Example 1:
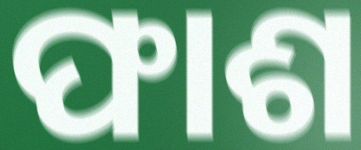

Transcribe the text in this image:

ଫାଶ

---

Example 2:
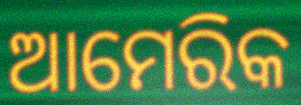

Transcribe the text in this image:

ଆମେରିକ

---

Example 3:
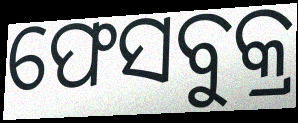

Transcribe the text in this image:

ଫେସବୁକ୍ର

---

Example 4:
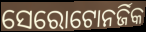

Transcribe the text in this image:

ସେରୋଟୋନର୍ଜିକ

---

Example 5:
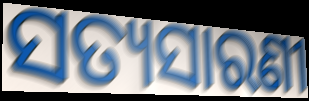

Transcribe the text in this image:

ସତ୍ୟସାରଣୀ